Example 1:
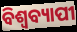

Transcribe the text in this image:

ବିଶ୍ୱବ୍ୟାପୀ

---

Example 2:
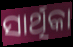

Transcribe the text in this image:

ସାର୍ଥିକା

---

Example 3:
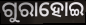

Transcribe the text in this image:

ଗୁରାହୋଇ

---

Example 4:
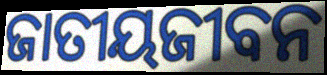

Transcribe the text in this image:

ଜାତୀୟଜୀବନ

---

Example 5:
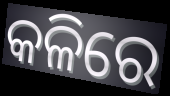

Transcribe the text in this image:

କଳିରେ